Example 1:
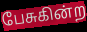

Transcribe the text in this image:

பேசுகின்ற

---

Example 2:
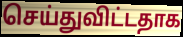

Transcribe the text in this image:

செய்துவிட்டதாக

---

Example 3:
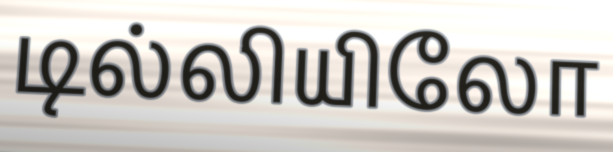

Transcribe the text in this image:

டில்லியிலோ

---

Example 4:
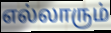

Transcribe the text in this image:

எல்லாரும்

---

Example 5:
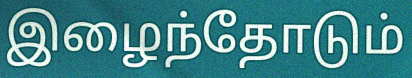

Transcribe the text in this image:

இழைந்தோடும்